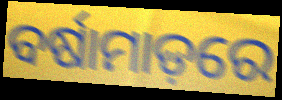
ବର୍ଷାମାଡ଼ରେ